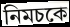
নিমচকে